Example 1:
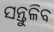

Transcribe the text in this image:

ସନ୍ତୁଳିବ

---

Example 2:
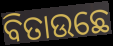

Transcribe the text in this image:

ବିତାଉଛେ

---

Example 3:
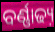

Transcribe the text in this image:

ବର୍ଣ୍ଣାଢ୍ୟ଼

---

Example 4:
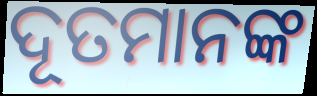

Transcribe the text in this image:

ଦୂତମାନଙ୍କ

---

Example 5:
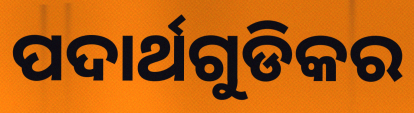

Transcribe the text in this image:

ପଦାର୍ଥଗୁଡିକର